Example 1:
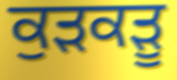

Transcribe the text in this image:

ਕੁੜਕੜੂ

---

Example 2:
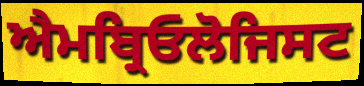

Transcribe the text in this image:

ਐਮਬ੍ਰਿਓਲੋਜਿਸਟ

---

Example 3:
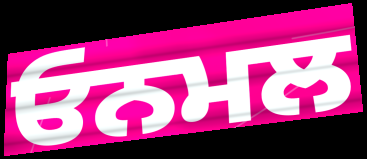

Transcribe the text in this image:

ਓਨਮਲ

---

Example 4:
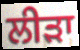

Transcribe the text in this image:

ਲੀੜਾ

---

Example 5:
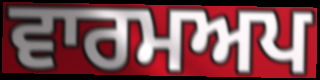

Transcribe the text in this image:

ਵਾਰਮਅਪ